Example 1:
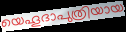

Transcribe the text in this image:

യെഹൂദാപുത്രിയായ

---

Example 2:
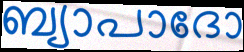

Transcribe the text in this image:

ബ്യാപാദോ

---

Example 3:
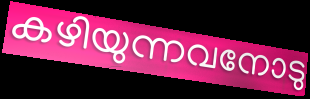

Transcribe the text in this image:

കഴിയുന്നവനോടു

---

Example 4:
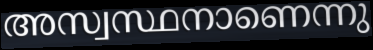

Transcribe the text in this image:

അസ്വസ്ഥനാണെന്നു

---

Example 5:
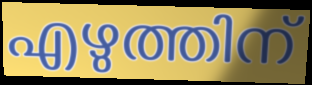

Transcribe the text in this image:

എഴുത്തിന്